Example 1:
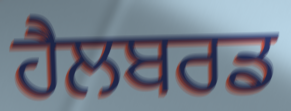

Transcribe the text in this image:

ਹੈਲਬਰਡ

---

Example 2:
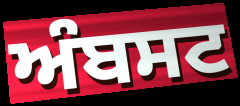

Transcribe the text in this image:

ਅੰਬਸਟ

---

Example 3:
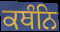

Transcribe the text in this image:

ਕਥੰਨਿ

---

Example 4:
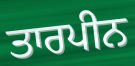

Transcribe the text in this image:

ਤਾਰਪੀਨ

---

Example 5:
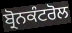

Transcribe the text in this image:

ਬ੍ਰੋਨਕੰਟਰੋਲ